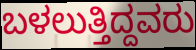
ಬಳಲುತ್ತಿದ್ದವರು